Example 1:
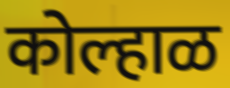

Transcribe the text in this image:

कोल्हाळ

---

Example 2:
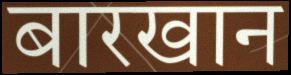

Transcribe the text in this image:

बारखान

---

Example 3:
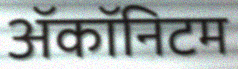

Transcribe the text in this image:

ॲकॉनिटम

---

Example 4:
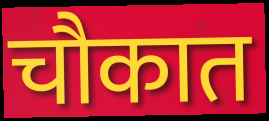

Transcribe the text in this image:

चौकात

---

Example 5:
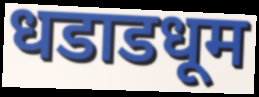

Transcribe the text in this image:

धडाडधूम